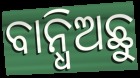
ବାନ୍ଧିଅଛୁ